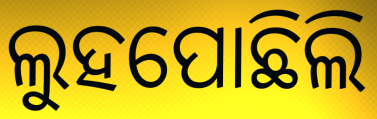
ଲୁହପୋଛିଲି